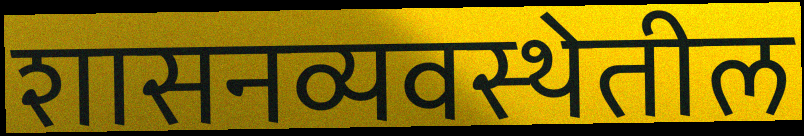
शासनव्यवस्थेतील